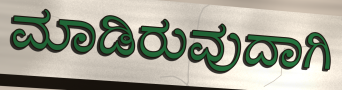
ಮಾಡಿರುವುದಾಗಿ